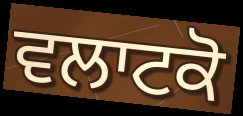
ਵਲਾਟਕੋ